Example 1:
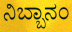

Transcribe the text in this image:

ನಿಬ್ಬಾನಂ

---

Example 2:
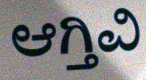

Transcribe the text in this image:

ಆಗ್ತಿವಿ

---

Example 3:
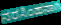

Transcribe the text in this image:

ನರಸಿಂಹನಾಗಿ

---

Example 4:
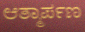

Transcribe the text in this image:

ಆತ್ಮಾರ್ಪಣ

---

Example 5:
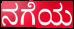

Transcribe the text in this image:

ನಗೆಯ